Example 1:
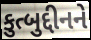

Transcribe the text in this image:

કુત્બુદ્દીનને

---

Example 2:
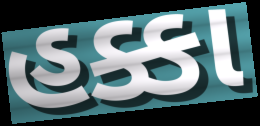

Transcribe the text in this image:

હક્કા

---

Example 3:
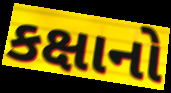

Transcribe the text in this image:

કક્ષાનો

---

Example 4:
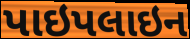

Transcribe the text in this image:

પાઇપલાઇન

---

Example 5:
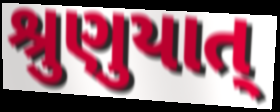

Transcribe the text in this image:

શ્રુણુયાત્